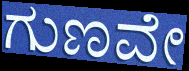
ಗುಣವೇ